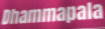
Dhammapala